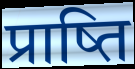
प्राष्ति